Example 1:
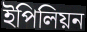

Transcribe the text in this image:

ইপিলিয়ন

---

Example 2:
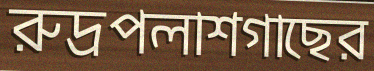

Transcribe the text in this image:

রুদ্রপলাশগাছের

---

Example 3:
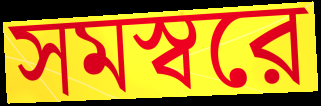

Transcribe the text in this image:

সমস্বরে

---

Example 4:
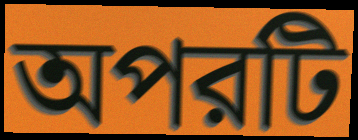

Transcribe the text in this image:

অপরটি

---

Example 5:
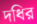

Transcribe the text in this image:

দধির